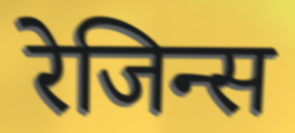
रेजिन्स